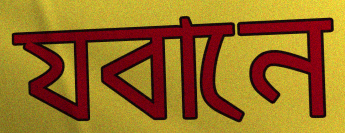
যবানে